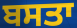
ਬਸਤਾ